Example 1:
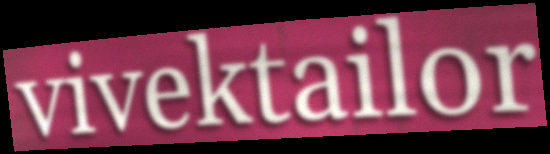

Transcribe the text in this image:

vivektailor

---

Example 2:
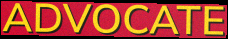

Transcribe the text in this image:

ADVOCATE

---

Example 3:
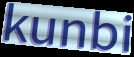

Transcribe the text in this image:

kunbi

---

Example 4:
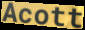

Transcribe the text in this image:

Acott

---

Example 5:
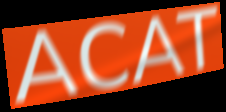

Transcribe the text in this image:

ACAT